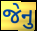
જેનુ